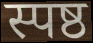
स्पष्ठ